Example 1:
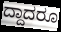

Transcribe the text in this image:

ದ್ದಾದರೂ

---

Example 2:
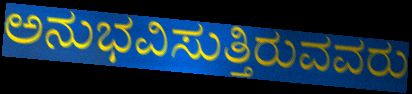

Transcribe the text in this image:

ಅನುಭವಿಸುತ್ತಿರುವವರು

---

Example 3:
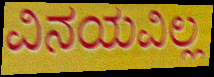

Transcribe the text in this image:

ವಿನಯವಿಲ್ಲ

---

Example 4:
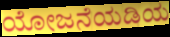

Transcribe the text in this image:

ಯೋಜನೆಯಡಿಯ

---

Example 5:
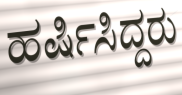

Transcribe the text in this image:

ಹರ್ಷಿಸಿದ್ದರು